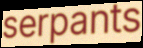
serpants